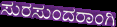
ಸುರಸುಂದರಾಂಗಿ